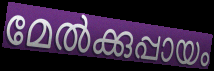
മേൽക്കുപ്പായം